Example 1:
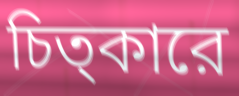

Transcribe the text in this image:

চিত্কারে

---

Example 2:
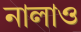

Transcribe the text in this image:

নালাও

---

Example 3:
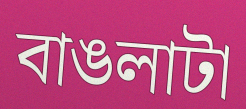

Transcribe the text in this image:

বাঙলাটা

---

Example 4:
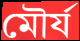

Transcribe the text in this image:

মৌর্য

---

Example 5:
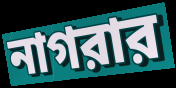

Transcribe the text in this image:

নাগরার